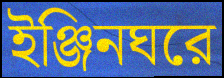
ইঞ্জিনঘরে